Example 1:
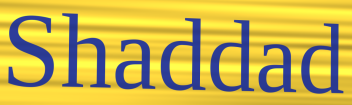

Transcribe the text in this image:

Shaddad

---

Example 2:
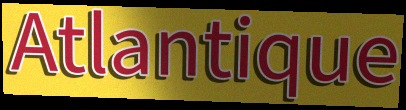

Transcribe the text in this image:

Atlantique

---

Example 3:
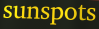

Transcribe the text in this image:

sunspots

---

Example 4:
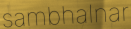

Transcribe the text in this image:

sambhalnar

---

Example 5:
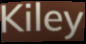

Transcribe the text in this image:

Kiley